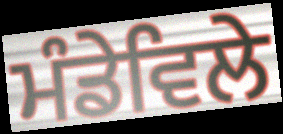
ਮੰਡੇਵਿਲੇ